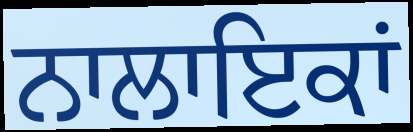
ਨਾਲਾਇਕਾਂ